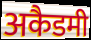
अकैडमी